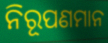
ନିରୂପଣମାନ